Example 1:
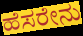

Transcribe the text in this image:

ಹೆಸರೇನು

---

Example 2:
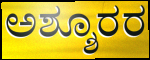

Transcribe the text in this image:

ಅಶ್ಶೂರರ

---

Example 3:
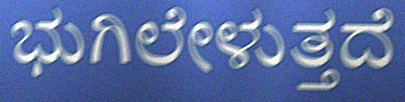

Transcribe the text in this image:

ಭುಗಿಲೇಳುತ್ತದೆ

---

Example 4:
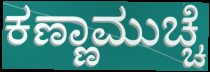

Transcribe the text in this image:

ಕಣ್ಣಾಮುಚ್ಚೆ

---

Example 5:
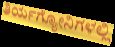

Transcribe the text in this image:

ತಿರ್ಯಗ್ಯೋನಿಗಳಲ್ಲಿ